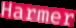
Harmer